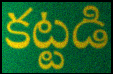
కట్టడి